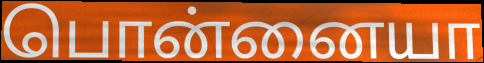
பொன்னையா